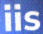
iis